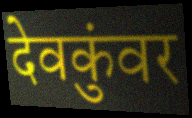
देवकुंवर